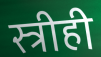
स्त्रीही